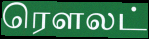
ரௌலட்